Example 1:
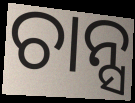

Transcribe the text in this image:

ଚାନ୍ସ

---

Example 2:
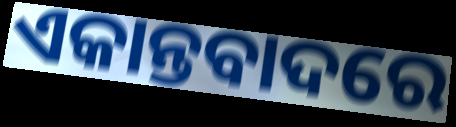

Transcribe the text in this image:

ଏକାନ୍ତବାଦରେ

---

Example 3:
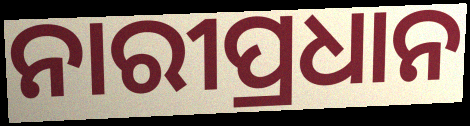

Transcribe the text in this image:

ନାରୀପ୍ରଧାନ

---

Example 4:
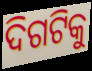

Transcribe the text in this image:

ଦିଗଟିକୁ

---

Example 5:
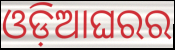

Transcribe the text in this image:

ଓଡ଼ିଆଘରର